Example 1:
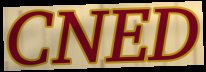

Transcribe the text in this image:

CNED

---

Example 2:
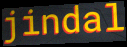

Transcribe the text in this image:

jindal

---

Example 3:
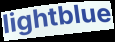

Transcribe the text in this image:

lightblue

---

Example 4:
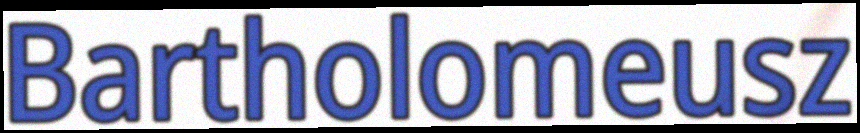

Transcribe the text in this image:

Bartholomeusz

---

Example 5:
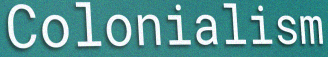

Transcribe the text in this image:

Colonialism